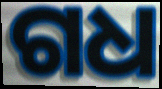
ଗଧ